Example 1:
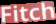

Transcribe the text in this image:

Fitch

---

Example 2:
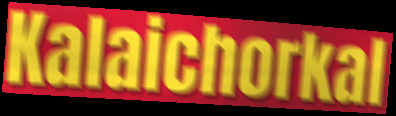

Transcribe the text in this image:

Kalaichorkal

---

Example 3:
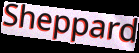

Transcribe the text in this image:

Sheppard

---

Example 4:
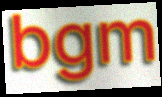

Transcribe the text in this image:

bgm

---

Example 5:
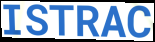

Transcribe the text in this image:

ISTRAC